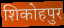
शिकोहपुर